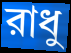
রাধু